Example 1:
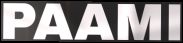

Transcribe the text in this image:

PAAMI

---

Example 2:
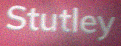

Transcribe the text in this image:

Stutley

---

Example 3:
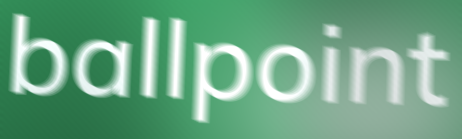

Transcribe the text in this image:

ballpoint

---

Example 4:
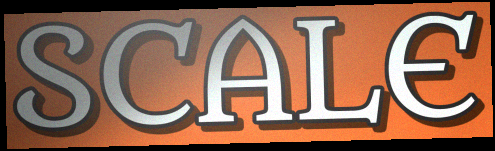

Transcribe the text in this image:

SCALE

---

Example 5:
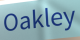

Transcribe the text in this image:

Oakley